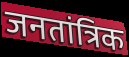
जनतांत्रिक